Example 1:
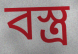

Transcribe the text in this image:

বস্ত্র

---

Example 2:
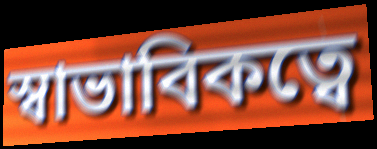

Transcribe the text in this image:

স্বাভাবিকত্বে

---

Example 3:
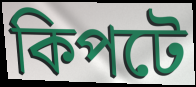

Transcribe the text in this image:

কিপটে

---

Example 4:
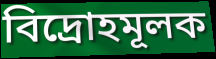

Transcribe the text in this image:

বিদ্রোহমূলক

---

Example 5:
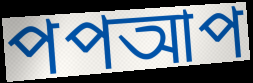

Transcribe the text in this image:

পপআপ